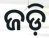
ଜଡ଼ି